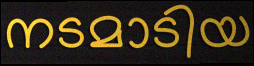
നടമാടിയ